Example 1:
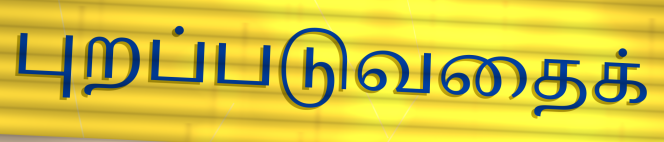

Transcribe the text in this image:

புறப்படுவதைக்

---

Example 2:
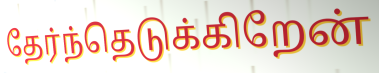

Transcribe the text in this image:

தேர்ந்தெடுக்கிறேன்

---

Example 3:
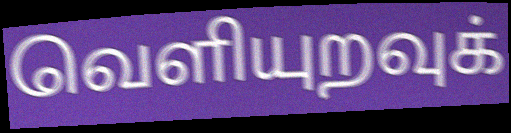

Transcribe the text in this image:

வெளியுறவுக்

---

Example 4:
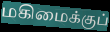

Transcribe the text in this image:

மகிமைக்குப்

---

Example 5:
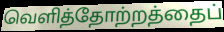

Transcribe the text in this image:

வெளித்தோற்றத்தைப்